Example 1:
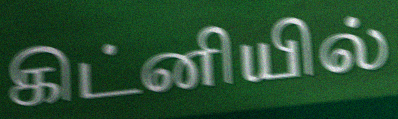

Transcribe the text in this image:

கிட்னியில்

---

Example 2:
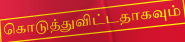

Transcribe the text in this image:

கொடுத்துவிட்டதாகவும்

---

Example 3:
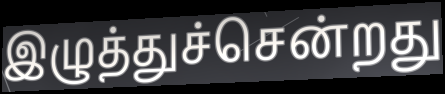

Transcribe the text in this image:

இழுத்துச்சென்றது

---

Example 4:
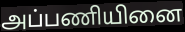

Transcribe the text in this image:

அப்பணியினை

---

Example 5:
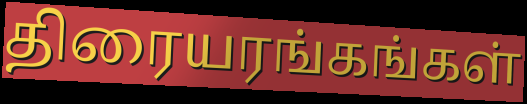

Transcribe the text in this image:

திரையரங்கங்கள்